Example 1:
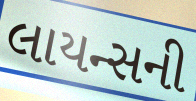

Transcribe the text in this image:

લાયન્સની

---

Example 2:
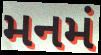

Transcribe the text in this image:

મનમં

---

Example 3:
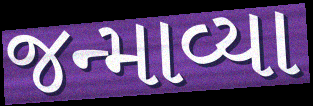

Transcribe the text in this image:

જન્માવ્યા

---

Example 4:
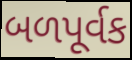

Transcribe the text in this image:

બળપૂર્વક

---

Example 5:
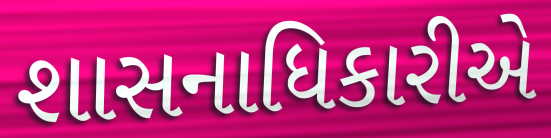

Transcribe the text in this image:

શાસનાધિકારીએ